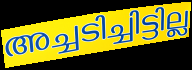
അച്ചടിച്ചിട്ടില്ല